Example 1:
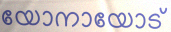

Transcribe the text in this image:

യോനായോട്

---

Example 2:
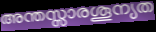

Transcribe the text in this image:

അന്തസ്സാരശൂന്യത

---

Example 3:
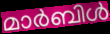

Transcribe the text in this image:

മാർബിൾ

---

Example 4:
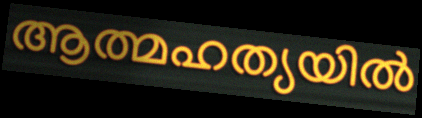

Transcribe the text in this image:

ആത്മഹത്യയിൽ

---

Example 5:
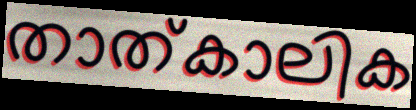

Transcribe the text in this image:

താത്കാലിക